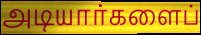
அடியார்களைப்